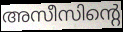
അസീസിന്റെ